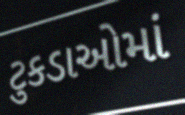
ટુકડાઓમાં